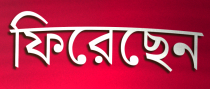
ফিরেছেন